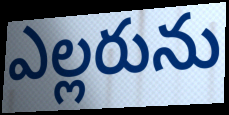
ఎల్లరును